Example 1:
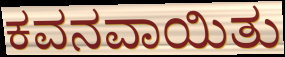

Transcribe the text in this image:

ಕವನವಾಯಿತು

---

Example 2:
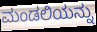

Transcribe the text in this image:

ಮಂಡಲಿಯನ್ನು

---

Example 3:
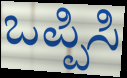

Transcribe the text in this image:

ಒಪ್ಪಿಸಿ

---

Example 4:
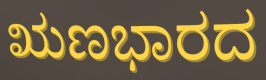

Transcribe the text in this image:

ಋಣಭಾರದ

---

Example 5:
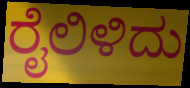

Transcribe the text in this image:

ರೈಲಿಳಿದು